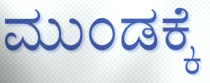
ಮುಂಡಕ್ಕೆ